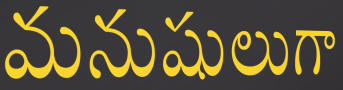
మనుషులుగా